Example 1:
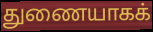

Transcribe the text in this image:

துணையாகக்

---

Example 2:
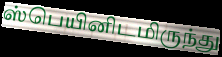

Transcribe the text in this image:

ஸ்பெயினிடமிருந்து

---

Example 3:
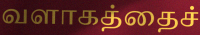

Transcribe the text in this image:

வளாகத்தைச்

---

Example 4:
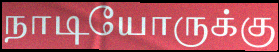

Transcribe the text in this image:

நாடியோருக்கு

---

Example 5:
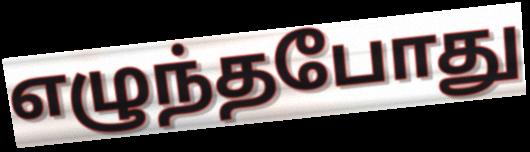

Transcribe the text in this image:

எழுந்தபோது